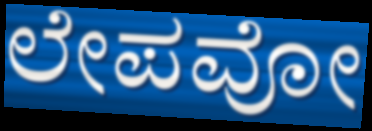
ಲೇಪವೋ